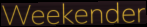
Weekender